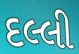
દલ્લી